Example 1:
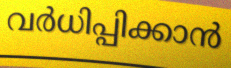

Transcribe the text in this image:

വർധിപ്പിക്കാൻ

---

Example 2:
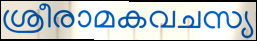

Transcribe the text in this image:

ശ്രീരാമകവചസ്യ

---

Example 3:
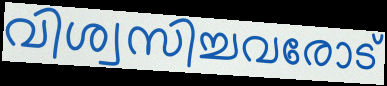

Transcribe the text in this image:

വിശ്വസിച്ചവരോട്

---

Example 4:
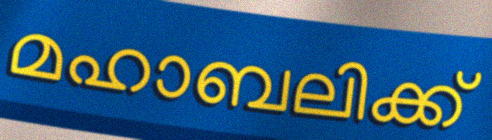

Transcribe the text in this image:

മഹാബലിക്ക്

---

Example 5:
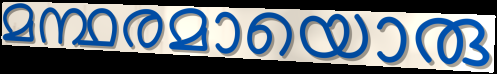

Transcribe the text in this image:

മന്ഥരമായൊരു